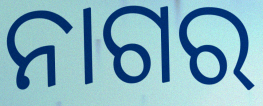
ନାଗର